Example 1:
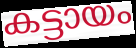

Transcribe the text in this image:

കട്ടായം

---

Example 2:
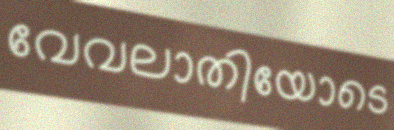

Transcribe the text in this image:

വേവലാതിയോടെ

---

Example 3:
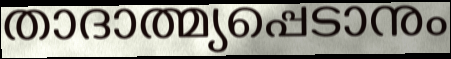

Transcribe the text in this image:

താദാത്മ്യപ്പെടാനും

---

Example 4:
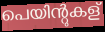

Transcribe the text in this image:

പെയിന്റുകള്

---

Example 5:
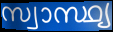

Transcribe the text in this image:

സ്വാസ്ഥ്യ